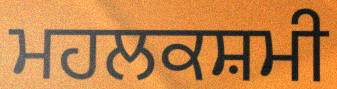
ਮਹਲਕਸ਼ਮੀ